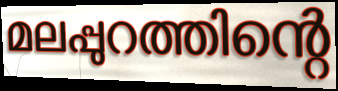
മലപ്പുറത്തിന്റെ